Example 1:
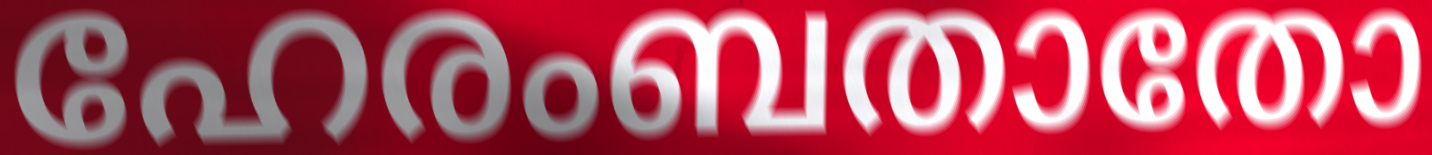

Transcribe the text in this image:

ഹേരംബതാതോ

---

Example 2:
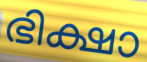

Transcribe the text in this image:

ഭിക്ഷാ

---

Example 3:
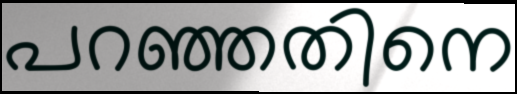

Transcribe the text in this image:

പറഞ്ഞതിനെ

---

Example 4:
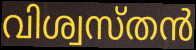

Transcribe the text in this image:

വിശ്വസ്തൻ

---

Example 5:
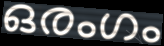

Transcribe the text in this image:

ഒരംഗം